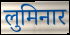
लुमिनार